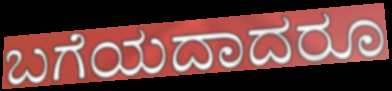
ಬಗೆಯದಾದರೂ